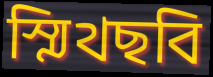
স্মিথছবি